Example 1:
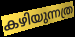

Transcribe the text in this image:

കഴിയുന്നത്ര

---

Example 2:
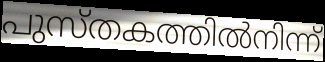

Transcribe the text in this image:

പുസ്തകത്തിൽനിന്ന്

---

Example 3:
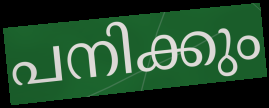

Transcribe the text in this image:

പനിക്കും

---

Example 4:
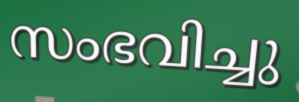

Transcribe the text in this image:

സംഭവിച്ചു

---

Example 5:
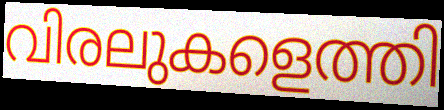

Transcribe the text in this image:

വിരലുകളെത്തി